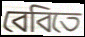
বেবিতে